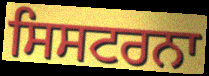
ਸਿਸਟਰਨਾ